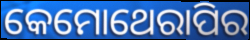
କେମୋଥେରାପିର